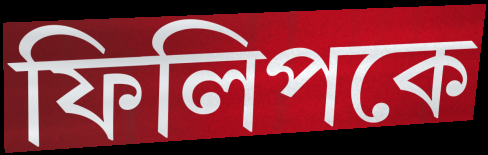
ফিলিপকে